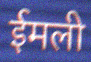
ईमली